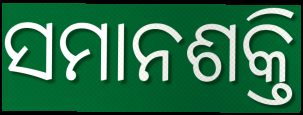
ସମାନଶକ୍ତି